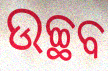
ଉଚ୍ଛବ